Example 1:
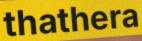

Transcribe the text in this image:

thathera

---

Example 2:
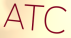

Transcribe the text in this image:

ATC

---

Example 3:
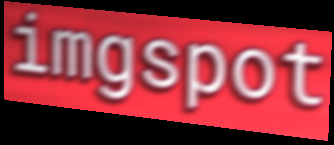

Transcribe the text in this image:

imgspot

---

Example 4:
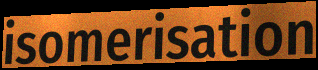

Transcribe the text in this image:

isomerisation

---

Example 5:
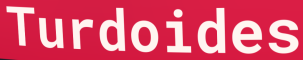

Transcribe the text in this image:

Turdoides